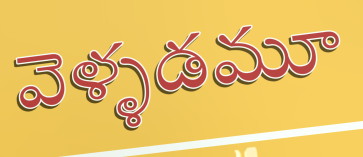
వెళ్ళడమూ